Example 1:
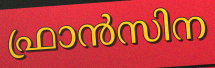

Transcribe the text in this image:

ഫ്രാൻസിന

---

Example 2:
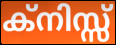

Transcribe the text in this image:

ക്നിസ്സ്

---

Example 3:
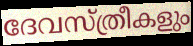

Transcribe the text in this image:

ദേവസ്ത്രീകളും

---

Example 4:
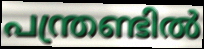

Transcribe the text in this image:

പന്ത്രണ്ടിൽ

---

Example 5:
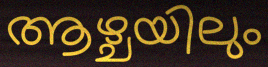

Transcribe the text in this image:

ആഴ്ചയിലും